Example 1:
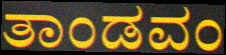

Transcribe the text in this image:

ತಾಂಡವಂ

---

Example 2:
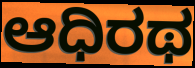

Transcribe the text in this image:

ಆಧಿರಥ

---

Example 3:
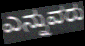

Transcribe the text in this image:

ಎನ್ನುವರು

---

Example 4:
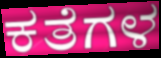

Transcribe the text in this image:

ಕತೆಗಳ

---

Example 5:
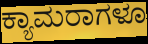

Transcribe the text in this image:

ಕ್ಯಾಮರಾಗಳೂ